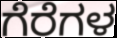
ಗೆರೆಗಳ